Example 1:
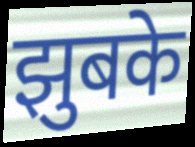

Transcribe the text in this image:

झुबके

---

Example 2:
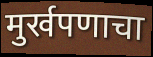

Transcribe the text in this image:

मुर्खपणाचा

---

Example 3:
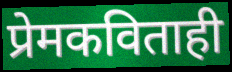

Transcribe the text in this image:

प्रेमकविताही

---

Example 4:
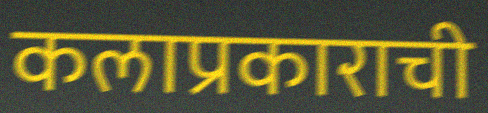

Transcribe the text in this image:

कलाप्रकाराची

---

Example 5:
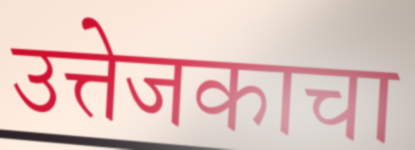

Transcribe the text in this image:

उत्तेजकाचा